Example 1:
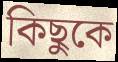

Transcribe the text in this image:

কিছুকে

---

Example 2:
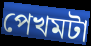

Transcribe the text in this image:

পেখমটা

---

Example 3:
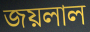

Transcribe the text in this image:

জয়লাল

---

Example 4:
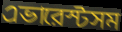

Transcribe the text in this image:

এভারেস্টসম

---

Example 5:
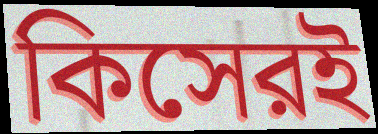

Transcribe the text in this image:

কিসেরই